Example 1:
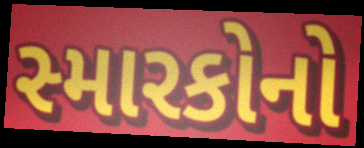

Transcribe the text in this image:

સ્મારકોનો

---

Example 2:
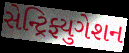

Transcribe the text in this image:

સેન્ટ્રિફ્યુગેશન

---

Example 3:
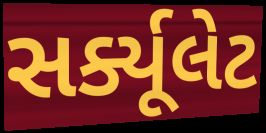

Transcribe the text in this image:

સર્ક્યૂલેટ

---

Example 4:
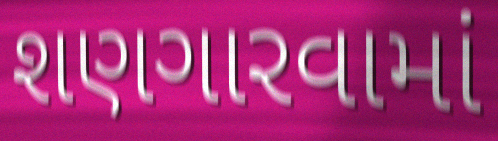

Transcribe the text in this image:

શણગારવામાં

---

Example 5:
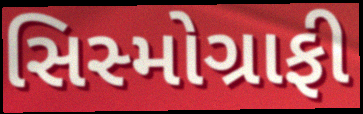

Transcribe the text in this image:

સિસ્મોગ્રાફી